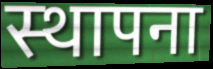
स्थापना